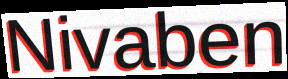
Nivaben